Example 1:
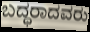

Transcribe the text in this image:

ಬದ್ಧರಾದವರು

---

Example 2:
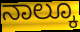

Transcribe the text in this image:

ನಾಲ್ಕೂ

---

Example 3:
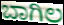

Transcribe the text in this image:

ಬಾಗಿಲ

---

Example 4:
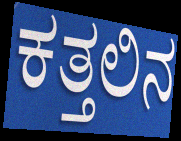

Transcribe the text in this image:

ಕತ್ತಲಿನ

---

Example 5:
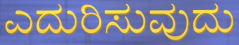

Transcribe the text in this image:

ಎದುರಿಸುವುದು